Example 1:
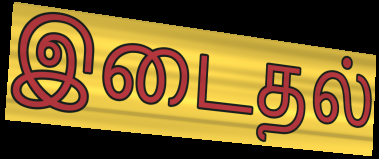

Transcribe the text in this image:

இடைதல்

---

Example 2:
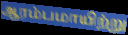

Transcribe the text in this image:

ஆரம்பமாயிற்று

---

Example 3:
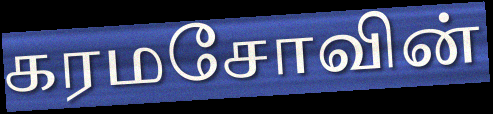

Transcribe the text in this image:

கரமசோவின்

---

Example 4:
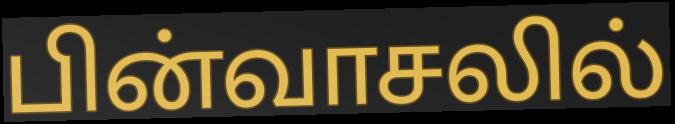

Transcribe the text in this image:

பின்வாசலில்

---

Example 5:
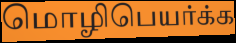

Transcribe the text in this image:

மொழிபெயர்க்க